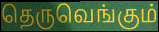
தெருவெங்கும்